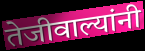
तेजीवाल्यांनी